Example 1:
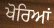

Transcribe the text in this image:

ਖੋਰਿਆਂ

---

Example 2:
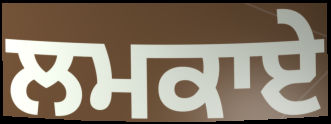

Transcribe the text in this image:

ਲਮਕਾਏ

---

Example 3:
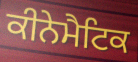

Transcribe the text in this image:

ਕੀਨੇਮੈਟਿਕ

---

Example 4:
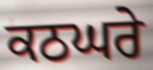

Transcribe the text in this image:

ਕਠਘਰੇ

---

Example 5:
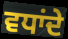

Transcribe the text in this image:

ਵਧਾਂਦੇ